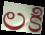
లకి